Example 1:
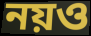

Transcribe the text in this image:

নয়ও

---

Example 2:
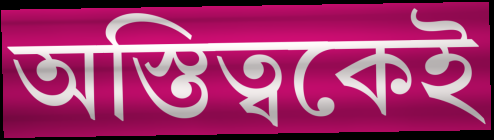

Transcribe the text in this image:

অস্তিত্বকেই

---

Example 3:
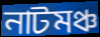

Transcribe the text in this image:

নাটমঞ্চ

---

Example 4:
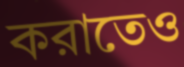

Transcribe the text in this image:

করাতেও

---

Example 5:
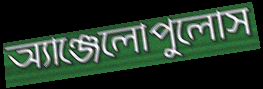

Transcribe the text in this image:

অ্যাঞ্জেলোপুলোস